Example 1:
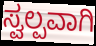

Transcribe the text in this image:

ಸ್ವಲ್ಪವಾಗಿ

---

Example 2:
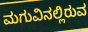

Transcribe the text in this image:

ಮಗುವಿನಲ್ಲಿರುವ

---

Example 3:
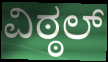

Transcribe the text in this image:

ವಿಠ್ಠಲ್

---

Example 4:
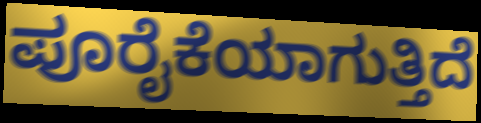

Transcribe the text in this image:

ಪೂರೈಕೆಯಾಗುತ್ತಿದೆ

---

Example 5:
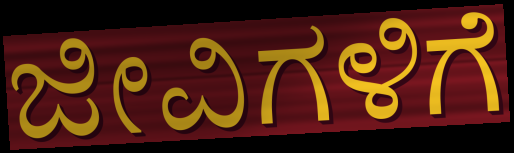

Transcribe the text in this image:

ಜೀವಿಗಳಿಗೆ